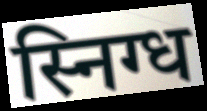
स्‍निग्ध